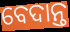
ବେଦାନ୍ତ